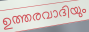
ഉത്തരവാദിയും